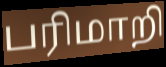
பரிமாறி